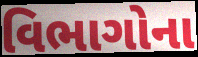
વિભાગોના